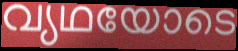
വ്യഥയോടെ